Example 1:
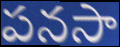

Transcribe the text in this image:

పనసా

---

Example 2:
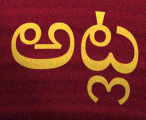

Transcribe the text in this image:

అట్ల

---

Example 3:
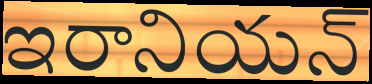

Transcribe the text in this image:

ఇరానియన్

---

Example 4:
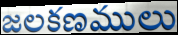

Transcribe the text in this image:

జలకణములు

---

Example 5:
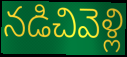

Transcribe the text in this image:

నడిచివెళ్లి